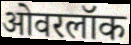
ओवरलॉक